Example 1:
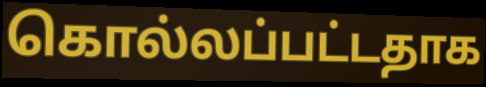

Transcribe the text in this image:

கொல்லப்பட்டதாக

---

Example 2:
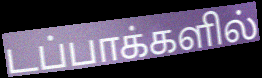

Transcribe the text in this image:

டப்பாக்களில்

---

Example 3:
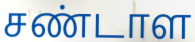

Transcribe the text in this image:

சண்டாள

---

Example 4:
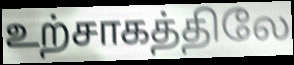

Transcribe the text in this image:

உற்சாகத்திலே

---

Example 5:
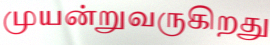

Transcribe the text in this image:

முயன்றுவருகிறது